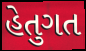
હેતુગત